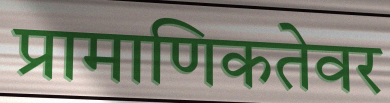
प्रामाणिकतेवर